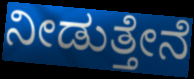
ನೀಡುತ್ತೇನೆ